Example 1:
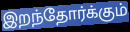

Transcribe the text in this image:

இறந்தோர்க்கும்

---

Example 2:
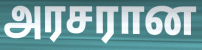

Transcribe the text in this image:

அரசரான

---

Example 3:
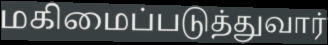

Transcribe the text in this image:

மகிமைப்படுத்துவார்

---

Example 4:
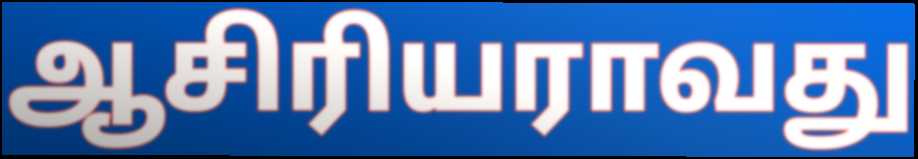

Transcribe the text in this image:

ஆசிரியராவது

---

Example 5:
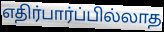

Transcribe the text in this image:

எதிர்பார்ப்பில்லாத